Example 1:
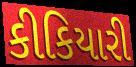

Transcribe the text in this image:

કીકિયારી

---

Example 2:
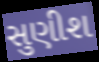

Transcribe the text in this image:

સુણીશ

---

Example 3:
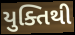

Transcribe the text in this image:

યુક્તિથી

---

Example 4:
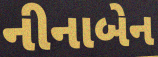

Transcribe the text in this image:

નીનાબેન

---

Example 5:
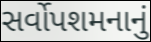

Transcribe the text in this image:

સર્વોપશમનાનું